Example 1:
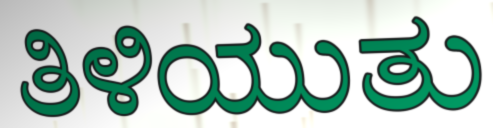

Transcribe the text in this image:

ತಿಳಿಯುತು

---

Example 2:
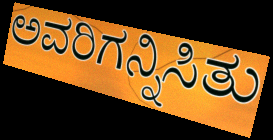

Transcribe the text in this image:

ಅವರಿಗನ್ನಿಸಿತು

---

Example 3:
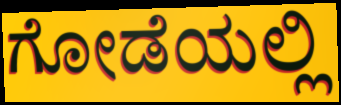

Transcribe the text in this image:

ಗೋಡೆಯಲ್ಲಿ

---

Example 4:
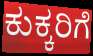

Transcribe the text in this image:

ಕುಕ್ಕರಿಗೆ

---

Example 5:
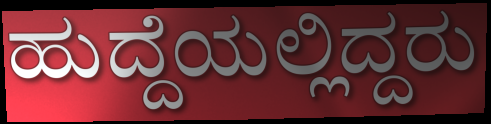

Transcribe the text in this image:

ಹುದ್ದೆಯಲ್ಲಿದ್ದರು